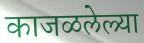
काजळलेल्या